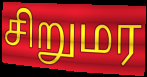
சிறுமர